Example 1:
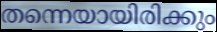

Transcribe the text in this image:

തന്നെയായിരിക്കും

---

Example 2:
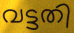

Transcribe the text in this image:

വട്ടതി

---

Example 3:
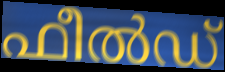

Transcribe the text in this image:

ഫീൽഡ്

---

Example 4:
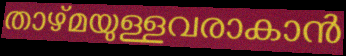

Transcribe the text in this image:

താഴ്മയുള്ളവരാകാൻ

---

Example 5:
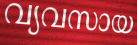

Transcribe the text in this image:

വ്യവസായ